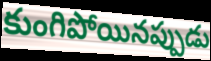
కుంగిపోయినప్పుడు